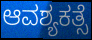
ಆವಶ್ಯಕತ್ಸೆ